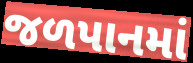
જળપાનમાં